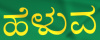
ಹೆಳುವ